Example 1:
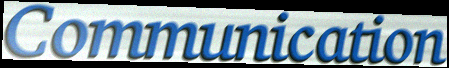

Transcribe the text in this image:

Communication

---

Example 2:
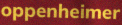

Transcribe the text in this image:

oppenheimer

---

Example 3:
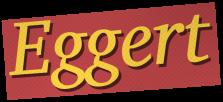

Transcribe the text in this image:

Eggert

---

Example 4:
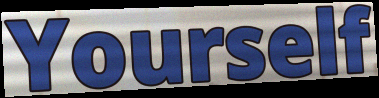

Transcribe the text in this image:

Yourself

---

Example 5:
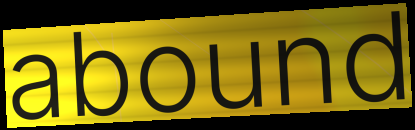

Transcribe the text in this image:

abound